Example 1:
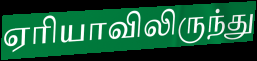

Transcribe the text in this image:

ஏரியாவிலிருந்து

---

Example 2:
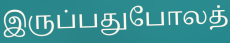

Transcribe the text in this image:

இருப்பதுபோலத்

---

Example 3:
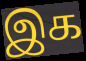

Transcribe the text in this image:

இக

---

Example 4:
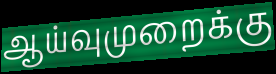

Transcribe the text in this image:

ஆய்வுமுறைக்கு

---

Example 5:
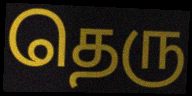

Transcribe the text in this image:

தெரு